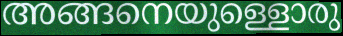
അങ്ങനെയുള്ളൊരു